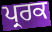
ਪ੍ਰਰਕ